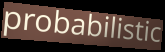
probabilistic